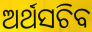
ଅର୍ଥସଚିବ